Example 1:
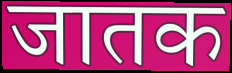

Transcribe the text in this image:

जातक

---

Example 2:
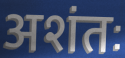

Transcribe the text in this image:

अशंतः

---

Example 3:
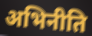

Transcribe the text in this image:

अभिनीति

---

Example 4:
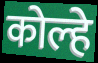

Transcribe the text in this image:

कोल्हे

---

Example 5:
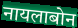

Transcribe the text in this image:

नायलाबोन